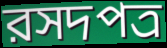
রসদপত্র